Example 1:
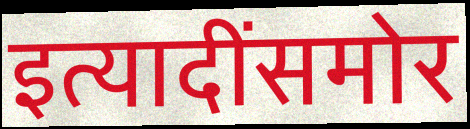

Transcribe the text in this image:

इत्यादींसमोर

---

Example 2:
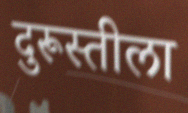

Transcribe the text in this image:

दुरूस्तीला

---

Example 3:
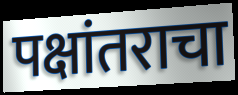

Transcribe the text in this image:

पक्षांतराचा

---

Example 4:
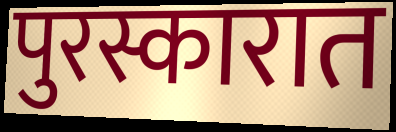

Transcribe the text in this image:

पुरस्कारात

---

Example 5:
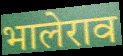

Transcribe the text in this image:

भालेराव